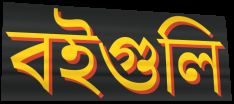
বইগুলি